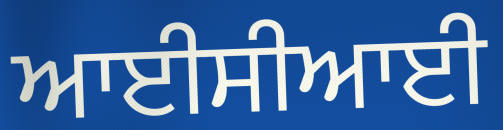
ਆਈਸੀਆਈ